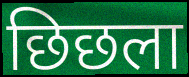
छिछला